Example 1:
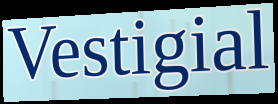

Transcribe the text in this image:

Vestigial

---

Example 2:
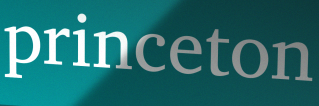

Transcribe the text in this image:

princeton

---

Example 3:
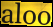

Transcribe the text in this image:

aloo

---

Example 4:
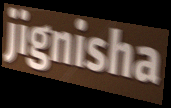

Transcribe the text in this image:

jignisha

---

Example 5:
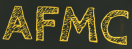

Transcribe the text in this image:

AFMC